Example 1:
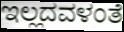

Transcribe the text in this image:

ಇಲ್ಲದವಳಂತೆ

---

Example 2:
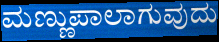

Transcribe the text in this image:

ಮಣ್ಣುಪಾಲಾಗುವುದು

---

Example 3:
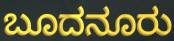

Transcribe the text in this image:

ಬೂದನೂರು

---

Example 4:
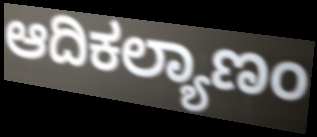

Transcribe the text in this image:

ಆದಿಕಲ್ಯಾಣಂ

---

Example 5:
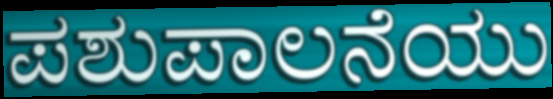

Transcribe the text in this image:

ಪಶುಪಾಲನೆಯು